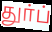
துர்ப்